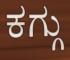
ಕಗ್ಗು